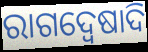
ରାଗଦ୍ୱେଷାଦି